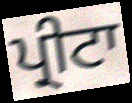
ਪ੍ਰੀਟਾ